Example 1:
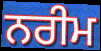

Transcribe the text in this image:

ਨਰੀਮ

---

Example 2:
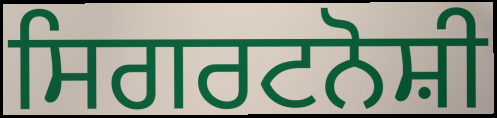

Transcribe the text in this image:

ਸਿਗਰਟਨੋਸ਼ੀ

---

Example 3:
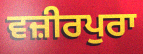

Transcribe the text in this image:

ਵਜ਼ੀਰਪੁਰਾ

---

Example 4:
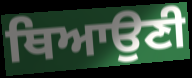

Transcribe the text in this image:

ਥਿਆਉਣੀ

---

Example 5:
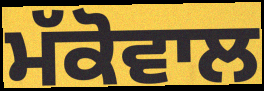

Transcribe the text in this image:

ਮੱਕੋਵਾਲ